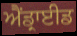
ਐਂਡ੍ਰਾਈਡ